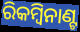
ରିକମ୍ବିନାଣ୍ଟ